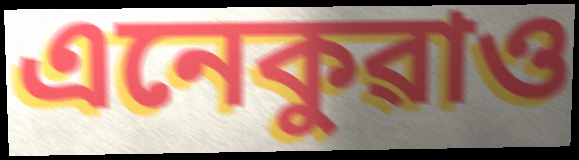
এনেকুৱাও